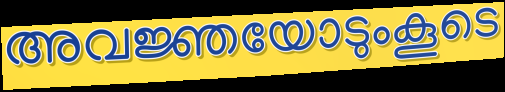
അവജ്ഞയോടുംകൂടെ